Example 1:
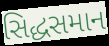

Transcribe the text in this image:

સિદ્ધસમાન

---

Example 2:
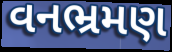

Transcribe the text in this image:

વનભ્રમણ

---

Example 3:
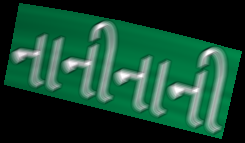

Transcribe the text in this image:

નાનીનાની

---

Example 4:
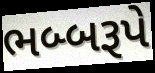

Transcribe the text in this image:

ભબ્બરૂપે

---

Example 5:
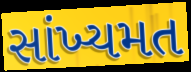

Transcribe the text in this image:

સાંખ્યમત